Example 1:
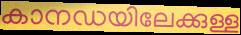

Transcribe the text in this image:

കാനഡയിലേക്കുള്ള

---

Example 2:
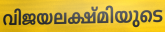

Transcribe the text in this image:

വിജയലക്ഷ്മിയുടെ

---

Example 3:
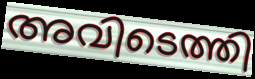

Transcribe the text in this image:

അവിടെത്തി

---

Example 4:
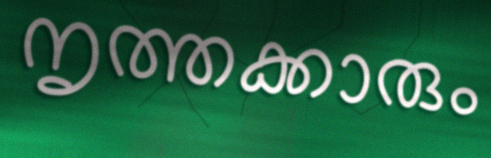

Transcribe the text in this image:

നൃത്തക്കാരും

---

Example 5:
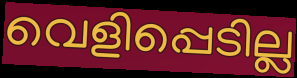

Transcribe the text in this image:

വെളിപ്പെടില്ല